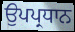
ਉਪਪ੍ਰਧਾਨ